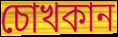
চোখকান